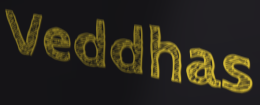
Veddhas